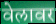
वेलावर